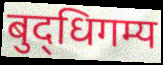
बुद्धिगम्य